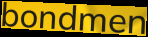
bondmen